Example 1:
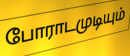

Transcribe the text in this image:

போராடமுடியும்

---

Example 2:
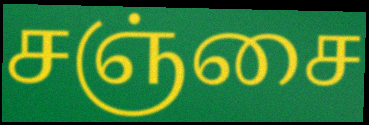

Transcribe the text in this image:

சஞ்சை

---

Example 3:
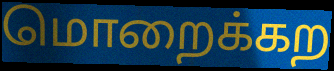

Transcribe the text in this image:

மொறைக்கற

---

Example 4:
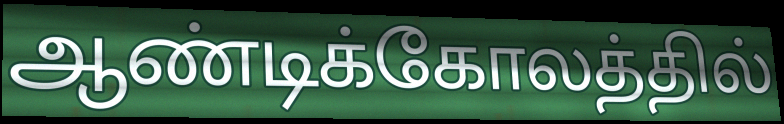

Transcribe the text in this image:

ஆண்டிக்கோலத்தில்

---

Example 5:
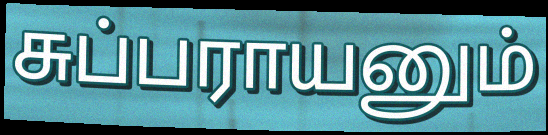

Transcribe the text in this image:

சுப்பராயனும்